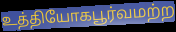
உத்தியோகபூர்வமற்ற